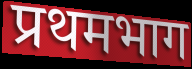
प्रथमभाग